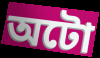
অটো